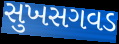
સુખસગવડ